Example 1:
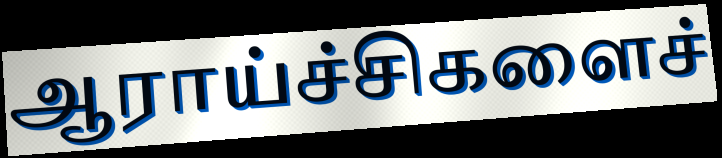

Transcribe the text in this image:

ஆராய்ச்சிகளைச்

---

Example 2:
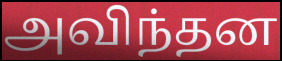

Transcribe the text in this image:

அவிந்தன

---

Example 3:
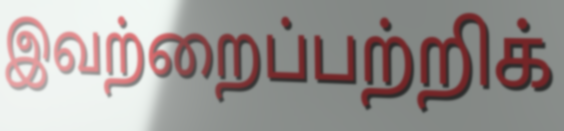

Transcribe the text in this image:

இவற்றைப்பற்றிக்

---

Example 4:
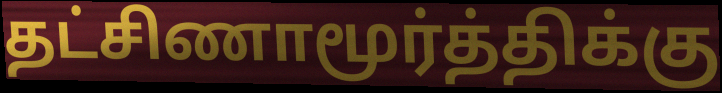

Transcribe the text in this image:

தட்சிணாமூர்த்திக்கு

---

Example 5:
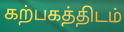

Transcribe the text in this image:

கற்பகத்திடம்